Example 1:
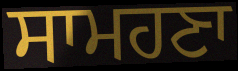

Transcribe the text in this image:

ਸਾਮਹਣਾ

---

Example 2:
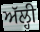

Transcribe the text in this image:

ਅੱਲ੍ਹੀ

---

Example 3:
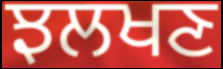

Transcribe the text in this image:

ਝਲਖਣ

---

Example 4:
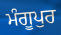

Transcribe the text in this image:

ਮੰਗੂਪੁਰ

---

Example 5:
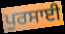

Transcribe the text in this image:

ਪੁਰਸਾਈ